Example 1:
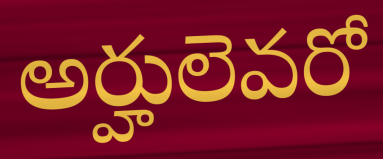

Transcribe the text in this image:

అర్హులెవరో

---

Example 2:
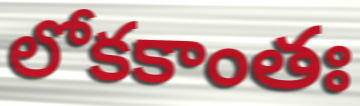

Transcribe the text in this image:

లోకకాంతః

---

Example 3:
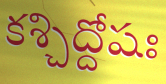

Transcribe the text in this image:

కశ్చిద్దోషః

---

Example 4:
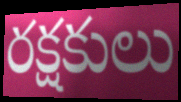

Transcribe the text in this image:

రక్షకులు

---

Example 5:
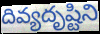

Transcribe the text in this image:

దివ్యదృష్టిని